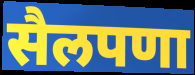
सैलपणा